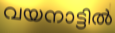
വയനാട്ടിൽ